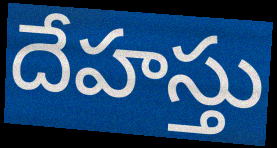
దేహస్తు